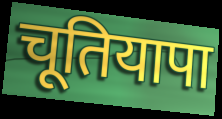
चूतियापा